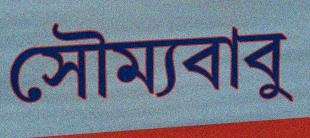
সৌম্যবাবু